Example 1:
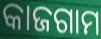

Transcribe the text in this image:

କାଜଗାମ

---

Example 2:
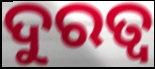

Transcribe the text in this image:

ଦୁରତ୍ଵ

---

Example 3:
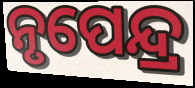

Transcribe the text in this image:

ନୃପେନ୍ଦ୍ର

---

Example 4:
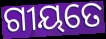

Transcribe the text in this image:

ଗୀୟତେ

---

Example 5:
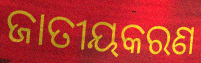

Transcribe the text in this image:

ଜାତୀୟକରଣ